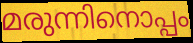
മരുന്നിനൊപ്പം